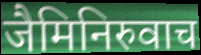
जैमिनिरुवाच